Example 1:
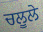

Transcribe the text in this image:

ਚਲੂਲੇ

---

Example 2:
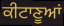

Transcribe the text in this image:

ਕੀਟਾਣੂਆਂ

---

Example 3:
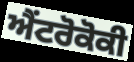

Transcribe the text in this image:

ਐਂਟਰੋਕੋਕੀ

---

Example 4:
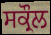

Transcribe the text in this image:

ਸਕ੍ਰੌਲ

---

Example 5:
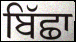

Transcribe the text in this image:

ਬਿੱਛਾ